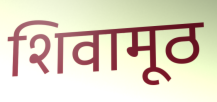
शिवामूठ